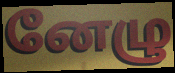
னேழு